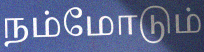
நம்மோடும்